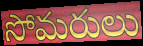
సోమరులు